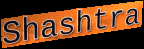
Shashtra